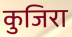
कुजिरा